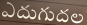
ఎదుగుదల